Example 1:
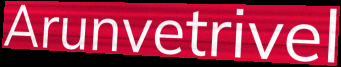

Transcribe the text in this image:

Arunvetrivel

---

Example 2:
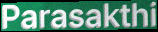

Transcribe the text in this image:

Parasakthi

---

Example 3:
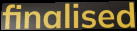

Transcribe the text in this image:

finalised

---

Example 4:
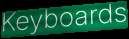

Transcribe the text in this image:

Keyboards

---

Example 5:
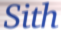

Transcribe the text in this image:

Sith